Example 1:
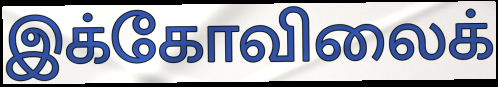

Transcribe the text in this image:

இக்கோவிலைக்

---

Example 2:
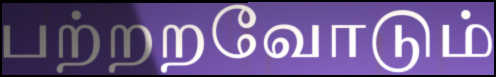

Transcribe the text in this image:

பற்றறவோடும்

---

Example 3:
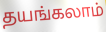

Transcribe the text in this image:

தயங்கலாம்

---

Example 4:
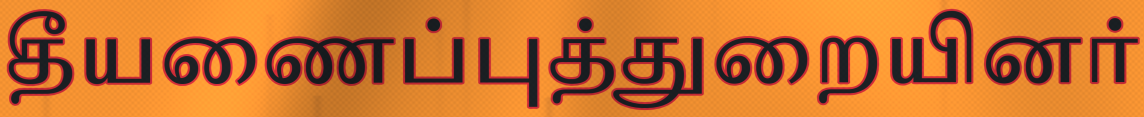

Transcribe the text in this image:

தீயணைப்புத்துறையினர்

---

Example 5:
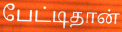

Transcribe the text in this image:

பேட்டிதான்